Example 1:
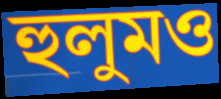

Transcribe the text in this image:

হুলুমও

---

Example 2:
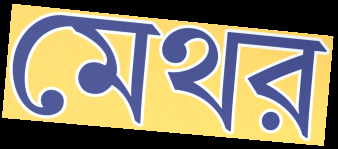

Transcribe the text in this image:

মেথর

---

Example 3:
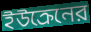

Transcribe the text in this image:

ইউক্রেনের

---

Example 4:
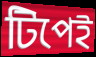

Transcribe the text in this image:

টিপেই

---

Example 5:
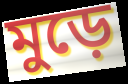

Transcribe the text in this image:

মুড়ে